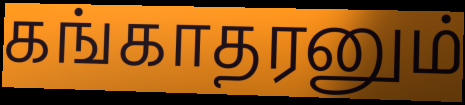
கங்காதரனும்